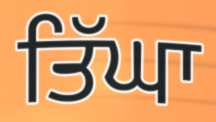
ਤਿੱਘਾ